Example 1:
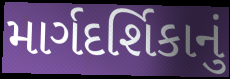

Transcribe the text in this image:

માર્ગદર્શિકાનું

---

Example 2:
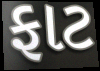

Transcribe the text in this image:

ફાટ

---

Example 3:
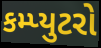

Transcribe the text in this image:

કમ્પ્યુટરો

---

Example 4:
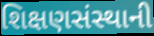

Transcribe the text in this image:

શિક્ષણસંસ્થાની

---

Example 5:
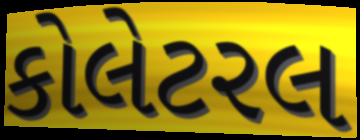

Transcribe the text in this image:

કોલેટરલ